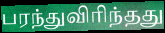
பரந்துவிரிந்தது